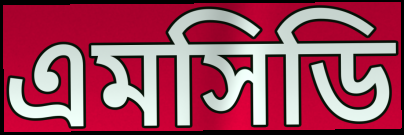
এমসিডি